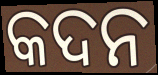
କଦନ